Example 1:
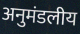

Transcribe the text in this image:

अनुमंडलीय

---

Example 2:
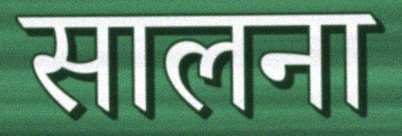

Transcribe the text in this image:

सालना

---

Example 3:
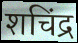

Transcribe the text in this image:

शचिंद्र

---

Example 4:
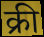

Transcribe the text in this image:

क्री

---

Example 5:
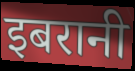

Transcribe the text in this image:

इबरानी